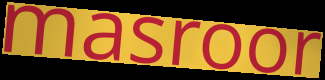
masroor